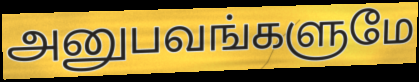
அனுபவங்களுமே